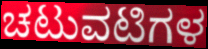
ಚಟುವಟಿಗಳ